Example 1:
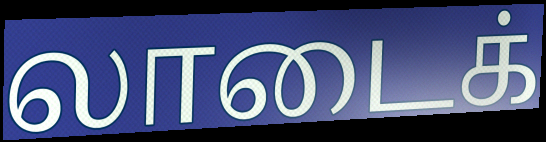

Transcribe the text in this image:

லாடைக்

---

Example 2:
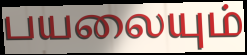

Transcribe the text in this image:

பயலையும்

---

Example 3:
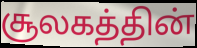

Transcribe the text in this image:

சூலகத்தின்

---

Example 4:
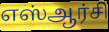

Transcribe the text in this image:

எஸ்ஆர்சி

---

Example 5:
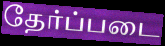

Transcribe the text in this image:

தேர்ப்படை